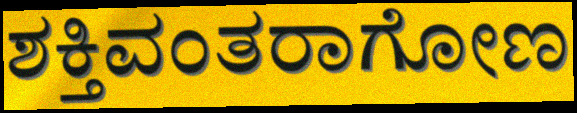
ಶಕ್ತಿವಂತರಾಗೋಣ